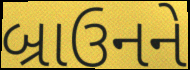
બ્રાઉનને